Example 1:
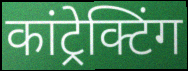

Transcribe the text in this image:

कांट्रेक्टिंग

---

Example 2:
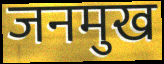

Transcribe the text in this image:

जनमुख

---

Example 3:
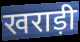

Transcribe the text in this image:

खराड़ी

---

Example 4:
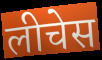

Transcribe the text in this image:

लीचेस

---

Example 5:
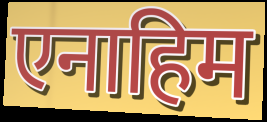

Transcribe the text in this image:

एनाहिम